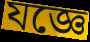
যজ্ঞে